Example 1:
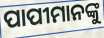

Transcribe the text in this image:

ପାପୀମାନଙ୍କୁ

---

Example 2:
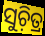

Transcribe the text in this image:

ସୁଚ଼ିତ୍ର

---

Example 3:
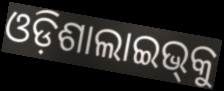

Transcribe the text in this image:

ଓଡ଼ିଶାଲାଇଭ୍‌କୁ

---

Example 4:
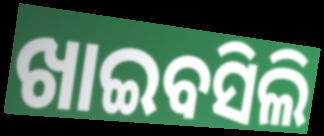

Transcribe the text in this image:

ଖାଇବସିଲି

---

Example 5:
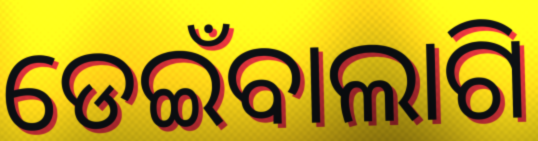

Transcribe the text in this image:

ଡେଇଁବାଲାଗି